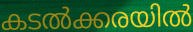
കടൽക്കരയിൽ